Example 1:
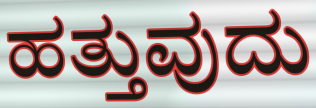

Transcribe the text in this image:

ಹತ್ತುವುದು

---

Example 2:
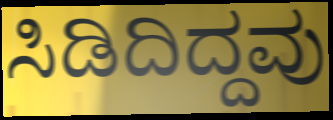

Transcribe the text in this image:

ಸಿಡಿದಿದ್ದವು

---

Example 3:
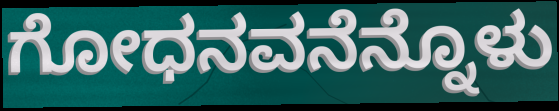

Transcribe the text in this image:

ಗೋಧನವನೆನ್ನೊಳು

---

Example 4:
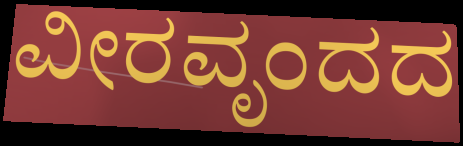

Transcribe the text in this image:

ವೀರವೃಂದದ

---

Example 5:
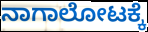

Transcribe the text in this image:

ನಾಗಾಲೋಟಕ್ಕೆ